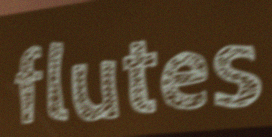
flutes